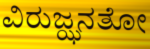
ವಿರುಜ್ಝನತೋ